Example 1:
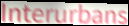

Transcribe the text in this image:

Interurbans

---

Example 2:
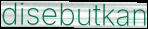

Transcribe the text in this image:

disebutkan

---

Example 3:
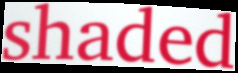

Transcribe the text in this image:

shaded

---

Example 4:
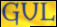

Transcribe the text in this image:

GUL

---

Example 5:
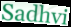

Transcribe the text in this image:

Sadhvi